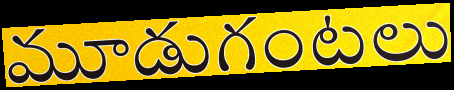
మూడుగంటలు